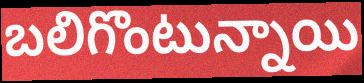
బలిగొంటున్నాయి